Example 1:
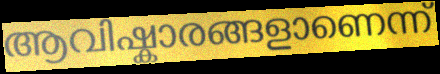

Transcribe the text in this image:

ആവിഷ്കാരങ്ങളാണെന്ന്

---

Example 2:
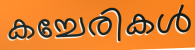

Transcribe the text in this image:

കച്ചേരികൾ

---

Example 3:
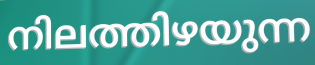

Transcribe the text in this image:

നിലത്തിഴയുന്ന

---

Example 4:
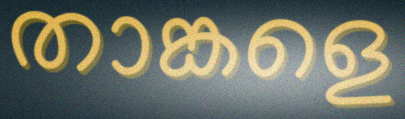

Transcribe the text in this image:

താങ്കളെ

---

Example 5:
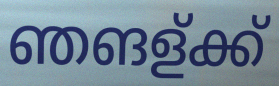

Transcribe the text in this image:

ഞങള്ക്ക്